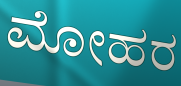
ಮೋಹರ